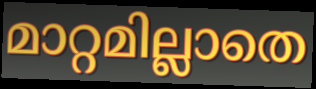
മാറ്റമില്ലാതെ